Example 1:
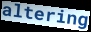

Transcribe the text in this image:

altering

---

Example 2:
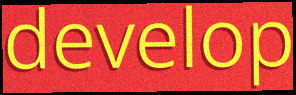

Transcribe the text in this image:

develop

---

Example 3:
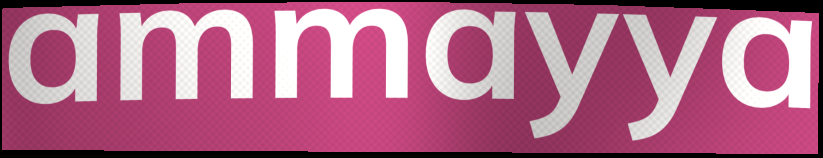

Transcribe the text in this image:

ammayya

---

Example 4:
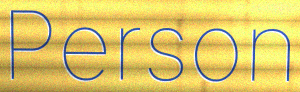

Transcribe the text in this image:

Person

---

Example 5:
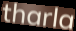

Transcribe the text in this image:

tharla